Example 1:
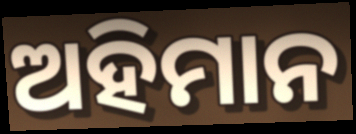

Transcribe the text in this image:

ଅହିମାନ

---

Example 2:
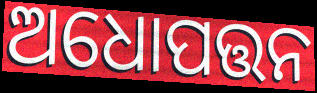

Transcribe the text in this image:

ଅଧୋପତ୍ତନ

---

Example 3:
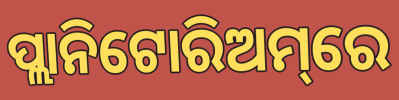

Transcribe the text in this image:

ପ୍ଲାନିଟୋରିଅମ୍‌ରେ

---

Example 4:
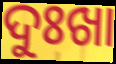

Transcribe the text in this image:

ଦୁଃଖା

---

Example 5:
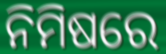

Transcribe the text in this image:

ନିମିଷରେ